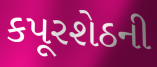
કપૂરશેઠની